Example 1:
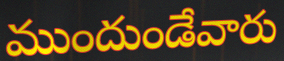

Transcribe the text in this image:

ముందుండేవారు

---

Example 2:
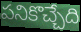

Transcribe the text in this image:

పనికొచ్చేది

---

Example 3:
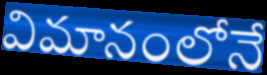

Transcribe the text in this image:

విమానంలోనే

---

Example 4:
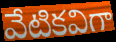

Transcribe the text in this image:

వేటికవిగా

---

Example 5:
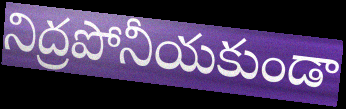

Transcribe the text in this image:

నిద్రపోనీయకుండా